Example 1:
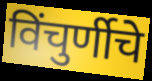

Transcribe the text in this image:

विंचुर्णीचे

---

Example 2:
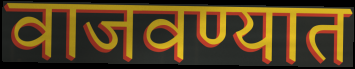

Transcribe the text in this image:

वाजवण्यात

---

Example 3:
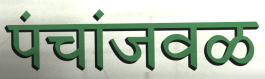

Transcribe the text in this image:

पंचांजवळ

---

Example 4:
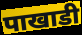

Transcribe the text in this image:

पाखाडी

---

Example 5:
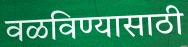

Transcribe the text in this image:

वळविण्यासाठी